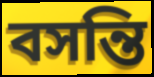
বসন্তি